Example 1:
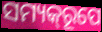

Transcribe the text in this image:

ସମ୍ୟକ୍‌ରୂପେ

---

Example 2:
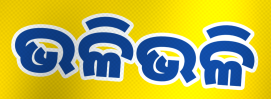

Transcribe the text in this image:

ଭଳିଭଳି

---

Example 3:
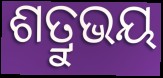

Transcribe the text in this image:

ଶତ୍ରୁଭୟ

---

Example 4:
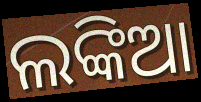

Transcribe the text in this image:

ଲଙ୍କିଆ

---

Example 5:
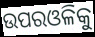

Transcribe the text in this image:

ଉପରଓଳିକୁ